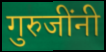
गुरुजींनी